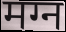
मग्‍न